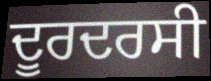
ਦੂਰਦਰਸੀ